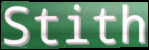
Stith